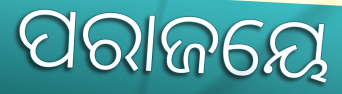
ପରାଜୟେ